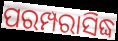
ପରମ୍ପରାସିଦ୍ଧ